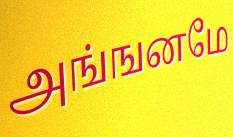
அங்ஙனமே